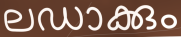
ലഡാക്കും